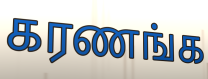
கரணங்க